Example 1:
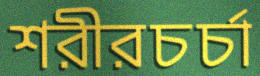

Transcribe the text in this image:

শরীরচর্চা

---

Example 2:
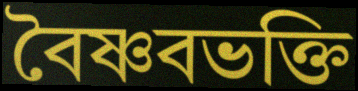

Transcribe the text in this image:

বৈষ্ণবভক্তি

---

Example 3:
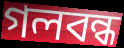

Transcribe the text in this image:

গলবন্ধ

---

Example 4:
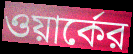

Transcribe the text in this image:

ওয়ার্কের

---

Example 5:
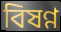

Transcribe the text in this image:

বিষণ্ন